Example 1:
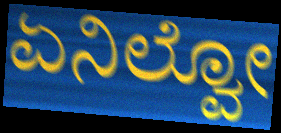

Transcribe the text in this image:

ಏನಿಲ್ವೋ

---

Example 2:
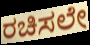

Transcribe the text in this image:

ರಚಿಸಲೇ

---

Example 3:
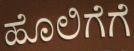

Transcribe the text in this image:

ಹೊಲಿಗೆಗೆ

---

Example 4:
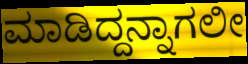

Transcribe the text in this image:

ಮಾಡಿದ್ದನ್ನಾಗಲೀ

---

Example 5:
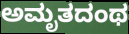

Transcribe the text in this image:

ಅಮೃತದಂಥ